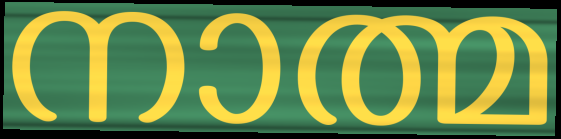
നാത്മ